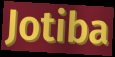
Jotiba